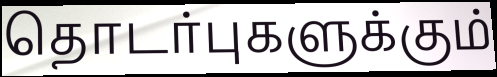
தொடர்புகளுக்கும்